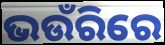
ଭଉଁରିରେ